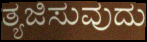
ತ್ಯಜಿಸುವುದು